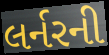
લર્નરની